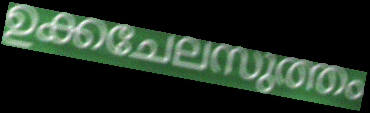
ഉക്കചേലസുത്തം